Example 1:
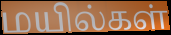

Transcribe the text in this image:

மயில்கள்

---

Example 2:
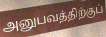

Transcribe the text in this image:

அனுபவத்திற்குப்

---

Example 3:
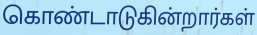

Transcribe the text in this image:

கொண்டாடுகின்றார்கள்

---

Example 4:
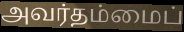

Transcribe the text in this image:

அவர்தம்மைப்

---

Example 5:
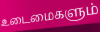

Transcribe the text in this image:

உடைமைகளும்